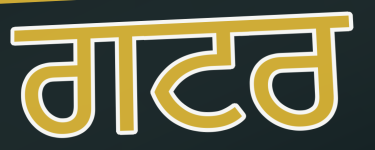
ਗਟਰ